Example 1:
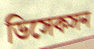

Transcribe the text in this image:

ডিসেকসন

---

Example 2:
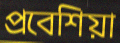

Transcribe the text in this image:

প্রবেশিয়া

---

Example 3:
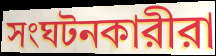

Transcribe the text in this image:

সংঘটনকারীরা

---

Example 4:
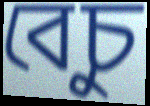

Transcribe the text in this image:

বেচু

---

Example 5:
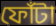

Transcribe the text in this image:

ফোঁটা